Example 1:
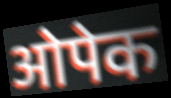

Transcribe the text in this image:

ओपेक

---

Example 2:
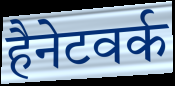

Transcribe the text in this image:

हैनेटवर्क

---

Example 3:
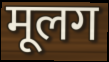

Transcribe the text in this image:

मूलग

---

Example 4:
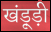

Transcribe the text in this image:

खंड़ूड़ी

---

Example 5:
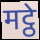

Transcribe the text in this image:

मट्ठे